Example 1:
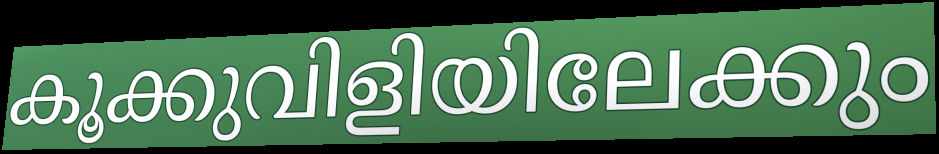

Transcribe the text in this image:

കൂക്കുവിളിയിലേക്കും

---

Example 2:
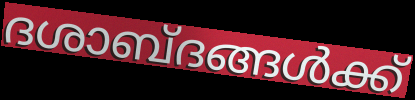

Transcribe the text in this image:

ദശാബ്ദങ്ങൾക്ക്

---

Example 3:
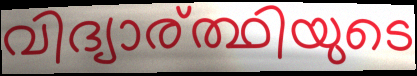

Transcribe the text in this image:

വിദ്യാര്ത്ഥിയുടെ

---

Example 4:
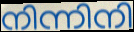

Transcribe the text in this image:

നിന്നിനി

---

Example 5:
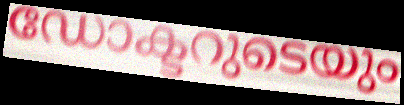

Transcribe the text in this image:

ഡോക്ടറുടെയും